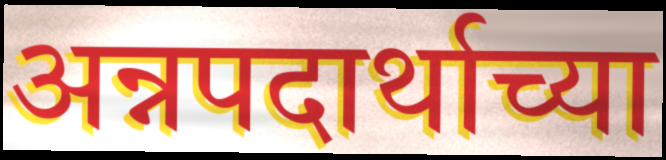
अन्नपदार्थाच्या